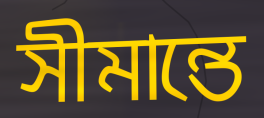
সীমান্তে